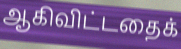
ஆகிவிட்டதைக்